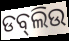
ଡବ୍‍ଲିଉ